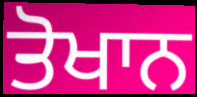
ਤੋਖਾਨ